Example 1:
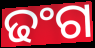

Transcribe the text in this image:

ଢଂଗ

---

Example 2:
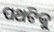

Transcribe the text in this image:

ପଥଟିକୁ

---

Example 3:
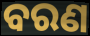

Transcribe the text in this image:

ବରଣ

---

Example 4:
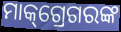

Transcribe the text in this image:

ମାକ୍‌ଗ୍ରେଗରଙ୍କ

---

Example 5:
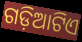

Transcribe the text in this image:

ଗଡ଼ିଆଟିଏ